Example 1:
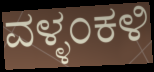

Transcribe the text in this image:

ವಳ್ಳಂಕಳಿ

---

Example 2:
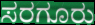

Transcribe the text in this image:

ಸರಗೂರು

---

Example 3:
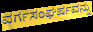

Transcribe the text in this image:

ವರ್ಗಸಂಘರ್ಷವನ್ನು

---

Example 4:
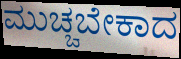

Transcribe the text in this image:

ಮುಚ್ಚಬೇಕಾದ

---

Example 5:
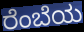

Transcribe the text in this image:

ರೆಂಬೆಯ